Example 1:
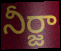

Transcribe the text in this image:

నీర్జా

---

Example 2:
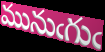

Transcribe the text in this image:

మునుఁగుఁ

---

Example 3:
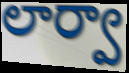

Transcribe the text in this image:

లార్వా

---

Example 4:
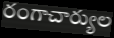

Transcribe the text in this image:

రంగాచార్యుల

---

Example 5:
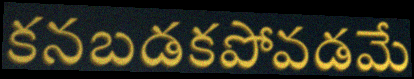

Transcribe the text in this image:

కనబడకపోవడమే